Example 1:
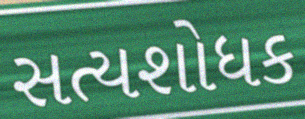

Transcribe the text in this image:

સત્યશોધક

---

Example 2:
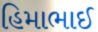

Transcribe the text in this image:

હિમાભાઈ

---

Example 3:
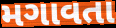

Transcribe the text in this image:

મગાવતા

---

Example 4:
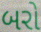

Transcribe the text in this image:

બરો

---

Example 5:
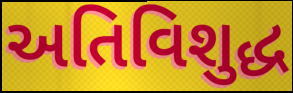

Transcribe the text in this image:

અતિવિશુદ્ધ